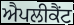
ਐਪਲੀਕੈਂਟ